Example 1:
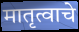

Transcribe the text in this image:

मातृत्वाचे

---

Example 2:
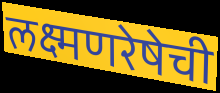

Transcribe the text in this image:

लक्ष्मणरेषेची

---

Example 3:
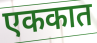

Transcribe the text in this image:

एककात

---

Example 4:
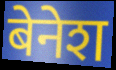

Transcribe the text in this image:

बेनेश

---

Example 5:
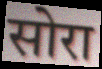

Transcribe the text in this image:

सोरा